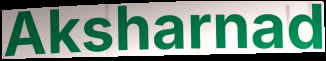
Aksharnad